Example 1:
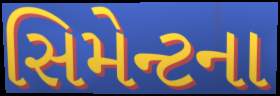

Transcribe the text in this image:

સિમેન્ટના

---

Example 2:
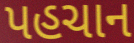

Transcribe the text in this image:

પહચાન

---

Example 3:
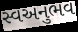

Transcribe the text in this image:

સ્વઅનુભવ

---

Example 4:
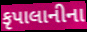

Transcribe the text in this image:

કૃપાલાનીના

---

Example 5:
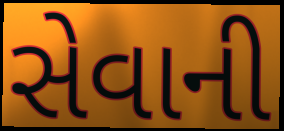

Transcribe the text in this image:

સેવાની